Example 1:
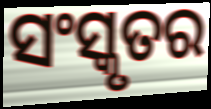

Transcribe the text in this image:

ସଂସ୍କୃତର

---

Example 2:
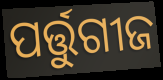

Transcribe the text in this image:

ପର୍ତ୍ତୁଗୀଜ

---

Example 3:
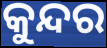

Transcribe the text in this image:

କୁନ୍ଦର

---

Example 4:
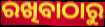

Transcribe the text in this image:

ରଖିବାଠାରୁ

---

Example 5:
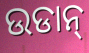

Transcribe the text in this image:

ଉଡାନ୍